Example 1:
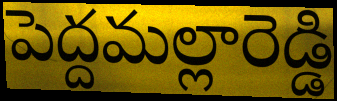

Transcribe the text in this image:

పెద్దమల్లారెడ్డి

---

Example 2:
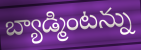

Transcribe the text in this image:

బ్యాడ్మింటన్ను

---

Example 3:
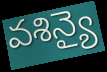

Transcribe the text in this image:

వశిన్యై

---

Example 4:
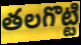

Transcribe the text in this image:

తలగొట్టి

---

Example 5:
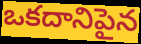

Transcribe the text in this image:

ఒకదానిపైన